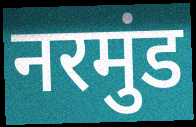
नरमुंड